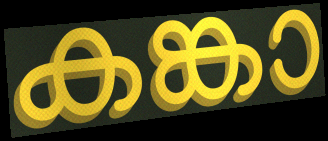
കങ്കാ